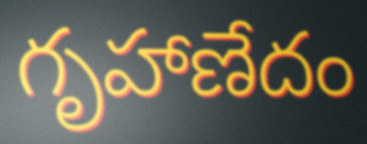
గృహాణేదం